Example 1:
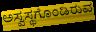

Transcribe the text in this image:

ಅಸ್ವಸ್ಥಗೊಂಡಿರುವ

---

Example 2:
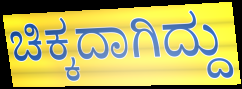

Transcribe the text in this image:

ಚಿಕ್ಕದಾಗಿದ್ದು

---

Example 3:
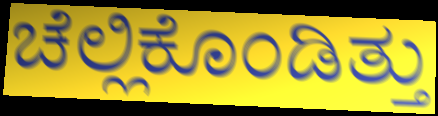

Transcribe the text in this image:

ಚೆಲ್ಲಿಕೊಂಡಿತ್ತು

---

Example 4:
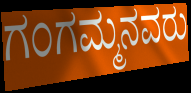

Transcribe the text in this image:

ಗಂಗಮ್ಮನವರು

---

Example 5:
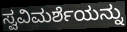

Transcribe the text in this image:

ಸ್ವವಿಮರ್ಶೆಯನ್ನು